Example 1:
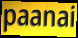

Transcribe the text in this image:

paanai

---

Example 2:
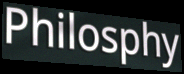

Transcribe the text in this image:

Philosphy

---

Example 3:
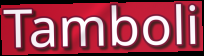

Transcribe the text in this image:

Tamboli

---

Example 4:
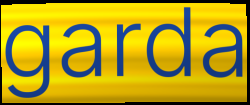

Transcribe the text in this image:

garda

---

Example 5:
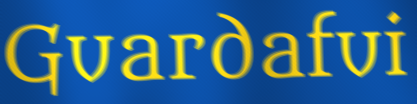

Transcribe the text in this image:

Guardafui